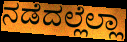
ನಡೆದಲ್ಲೆಲ್ಲಾ